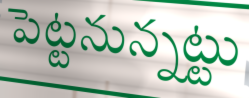
పెట్టనున్నట్టు